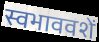
स्वभाववशें